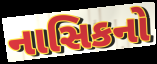
નાસિકનો